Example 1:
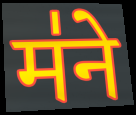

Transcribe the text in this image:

म॑ने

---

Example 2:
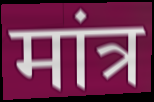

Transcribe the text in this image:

मांत्र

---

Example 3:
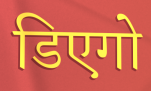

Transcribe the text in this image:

डिएगो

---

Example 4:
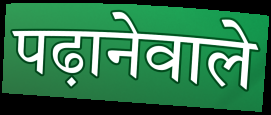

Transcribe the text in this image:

पढ़ानेवाले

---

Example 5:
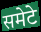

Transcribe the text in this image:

समेटे